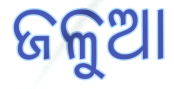
ଜଳୁଆ